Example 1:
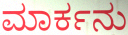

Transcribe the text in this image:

ಮಾರ್ಕನು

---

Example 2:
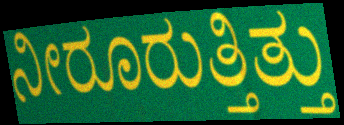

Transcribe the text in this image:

ನೀರೂರುತ್ತಿತ್ತು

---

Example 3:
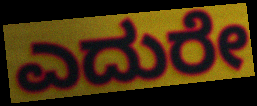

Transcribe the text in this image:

ಎದುರೇ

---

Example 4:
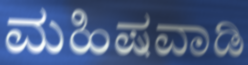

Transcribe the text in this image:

ಮಹಿಷವಾಡಿ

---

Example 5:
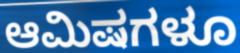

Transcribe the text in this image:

ಆಮಿಷಗಳೂ